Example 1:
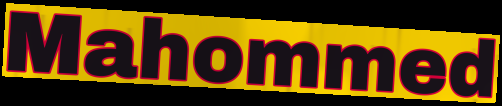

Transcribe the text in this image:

Mahommed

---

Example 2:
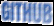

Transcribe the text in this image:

GITHUB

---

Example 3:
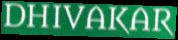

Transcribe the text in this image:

DHIVAKAR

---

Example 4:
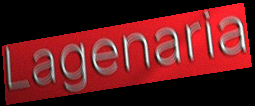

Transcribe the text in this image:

Lagenaria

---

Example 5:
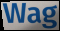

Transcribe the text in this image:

Wag